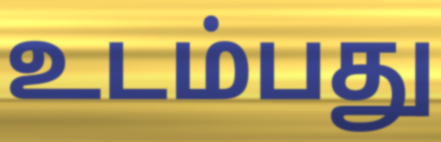
உடம்பது